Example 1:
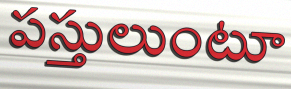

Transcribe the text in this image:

పస్తులుంటూ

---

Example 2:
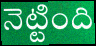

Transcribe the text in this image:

నెట్టింది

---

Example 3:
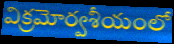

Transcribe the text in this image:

విక్రమోర్వశీయంలో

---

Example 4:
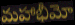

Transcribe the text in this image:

మహాభీమో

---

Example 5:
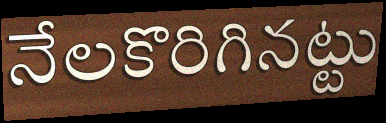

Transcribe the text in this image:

నేలకొరిగినట్టు